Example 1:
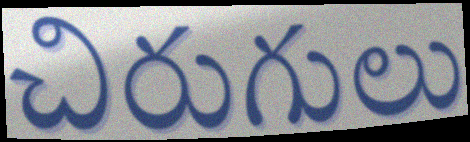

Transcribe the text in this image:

చిరుగులు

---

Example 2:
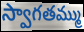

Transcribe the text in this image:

స్వాగతమ్ము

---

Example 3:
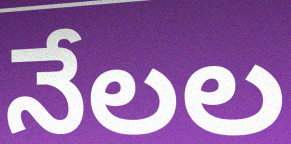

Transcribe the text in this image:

నేలల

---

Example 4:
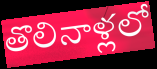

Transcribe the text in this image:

తొలినాళ్లలో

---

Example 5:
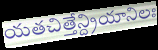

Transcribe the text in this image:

యతచిత్తేన్ద్రియానిలః